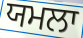
ਯਮਲਾ